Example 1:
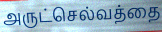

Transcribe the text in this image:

அருட்செல்வத்தை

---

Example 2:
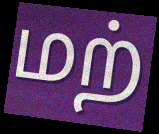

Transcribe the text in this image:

மற்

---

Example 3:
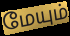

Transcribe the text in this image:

மேயும்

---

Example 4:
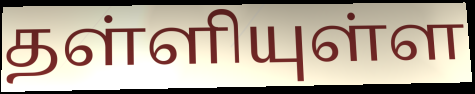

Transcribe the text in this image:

தள்ளியுள்ள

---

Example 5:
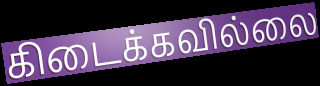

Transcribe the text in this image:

கிடைக்கவில்லை